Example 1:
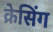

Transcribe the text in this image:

क्रेसिंग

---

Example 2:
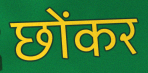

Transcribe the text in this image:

छोंकर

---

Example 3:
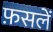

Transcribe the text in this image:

फ़सलें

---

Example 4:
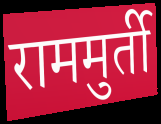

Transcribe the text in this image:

राममुर्ती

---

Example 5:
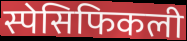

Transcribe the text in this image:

स्पेसिफिकली